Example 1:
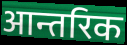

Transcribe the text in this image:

आन्तरिक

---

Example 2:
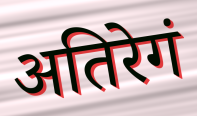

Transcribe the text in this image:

अतिरेगं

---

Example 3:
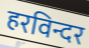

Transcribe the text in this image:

हरविन्दर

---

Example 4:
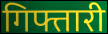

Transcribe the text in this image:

गिफ्तारी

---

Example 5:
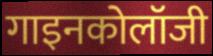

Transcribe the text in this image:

गाइनकोलॉजी